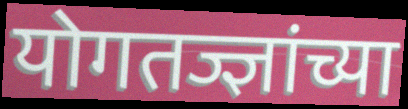
योगतज्ज्ञांच्या